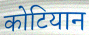
कोटियान